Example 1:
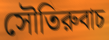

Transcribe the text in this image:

সৌতিরুবাচ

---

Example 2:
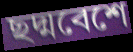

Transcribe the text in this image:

ছদ্মবেশে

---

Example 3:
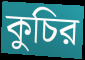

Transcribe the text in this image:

কুচির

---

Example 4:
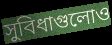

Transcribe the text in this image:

সুবিধাগুলোও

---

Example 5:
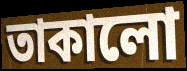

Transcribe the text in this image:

তাকালো